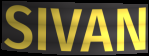
SIVAN